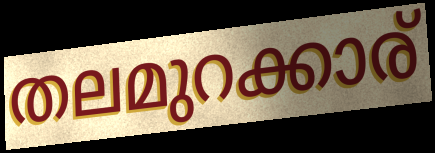
തലമുറക്കാര്